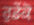
ਰੁਡੇਂਕੋ